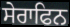
ਸੇਰਾਫਿਨ